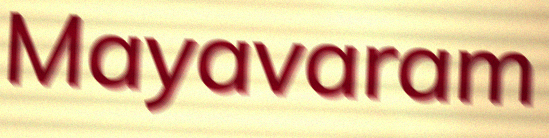
Mayavaram